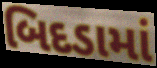
બિદડામાં